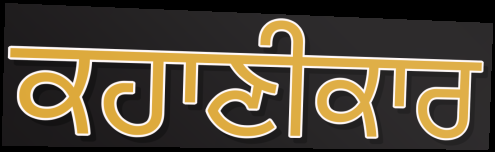
ਕਹਾਣੀਕਾਰ